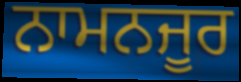
ਨਾਮਨਜੂਰ